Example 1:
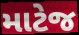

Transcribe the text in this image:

માટેજ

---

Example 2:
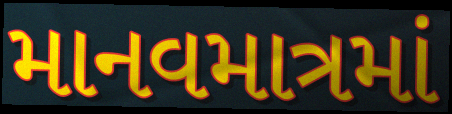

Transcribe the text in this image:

માનવમાત્રમાં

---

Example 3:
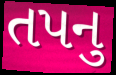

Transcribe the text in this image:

તપનુ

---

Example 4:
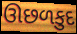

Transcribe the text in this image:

ઊછળકુદ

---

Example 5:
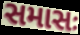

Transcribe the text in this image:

સમાસઃ